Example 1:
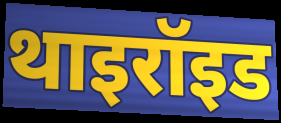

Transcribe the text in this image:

थाइरॉइड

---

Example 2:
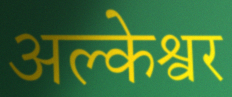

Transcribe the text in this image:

अल्केश्वर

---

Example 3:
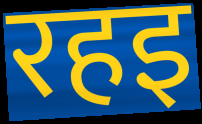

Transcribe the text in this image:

रहइ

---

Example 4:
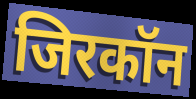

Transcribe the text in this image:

जिरकॉन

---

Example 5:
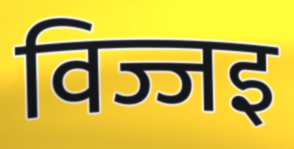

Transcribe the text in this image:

विज्जइ